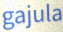
gajula